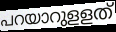
പറയാറുളളത്